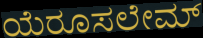
ಯೆರೂಸಲೇಮ್